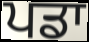
ਪਡਾ